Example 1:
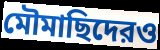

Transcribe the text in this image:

মৌমাছিদেরও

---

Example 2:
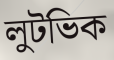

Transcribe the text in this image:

লুটভিক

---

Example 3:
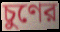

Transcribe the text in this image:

চুণের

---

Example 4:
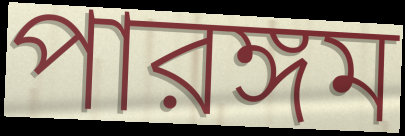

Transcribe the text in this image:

পারঙ্গম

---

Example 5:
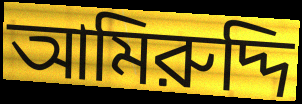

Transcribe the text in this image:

আমিরুদ্দি